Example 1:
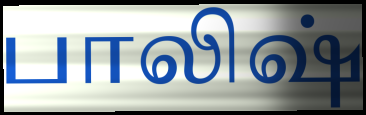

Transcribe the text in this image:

பாலிஷ்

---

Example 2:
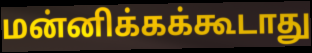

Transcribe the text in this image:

மன்னிக்கக்கூடாது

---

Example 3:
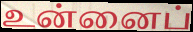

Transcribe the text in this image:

உன்னைப்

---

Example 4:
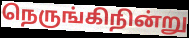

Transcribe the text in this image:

நெருங்கிநின்று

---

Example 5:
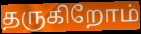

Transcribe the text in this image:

தருகிறோம்